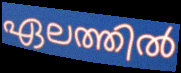
ഏലത്തിൽ